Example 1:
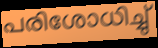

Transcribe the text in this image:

പരിശോധിച്ചു്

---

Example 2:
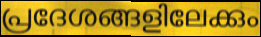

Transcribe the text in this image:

പ്രദേശങ്ങളിലേക്കും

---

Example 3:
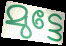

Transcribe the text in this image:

മുട്ടേ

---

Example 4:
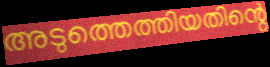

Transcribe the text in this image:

അടുത്തെത്തിയതിന്റെ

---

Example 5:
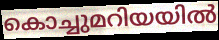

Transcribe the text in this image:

കൊച്ചുമറിയയിൽ